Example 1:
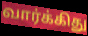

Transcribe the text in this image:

வார்க்கிது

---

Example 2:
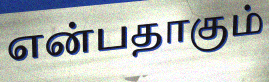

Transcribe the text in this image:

என்பதாகும்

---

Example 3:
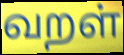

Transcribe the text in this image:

வறள்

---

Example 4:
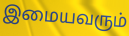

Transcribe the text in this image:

இமையவரும்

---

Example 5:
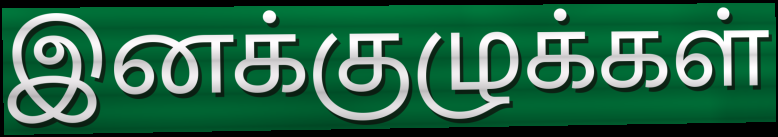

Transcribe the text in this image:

இனக்குழுக்கள்